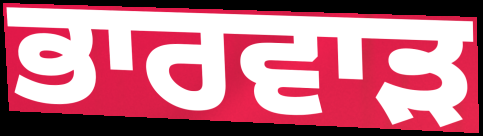
ਭਾਰਵਾੜ